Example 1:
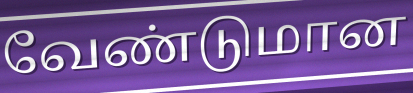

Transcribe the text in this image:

வேண்டுமான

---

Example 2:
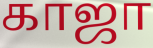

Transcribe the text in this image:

காஜா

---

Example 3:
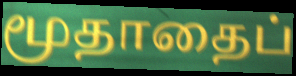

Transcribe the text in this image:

மூதாதைப்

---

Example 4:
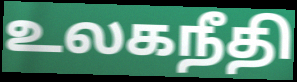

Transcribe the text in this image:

உலகநீதி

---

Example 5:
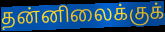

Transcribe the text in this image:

தன்னிலைக்குக்